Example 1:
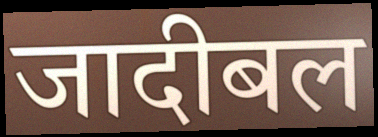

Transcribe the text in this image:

जादीबल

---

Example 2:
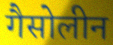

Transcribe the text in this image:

गैसोलीन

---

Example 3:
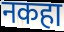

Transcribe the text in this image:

नकहा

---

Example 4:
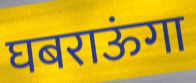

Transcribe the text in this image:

घबराऊंगा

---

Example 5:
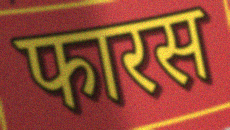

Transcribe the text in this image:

फारस